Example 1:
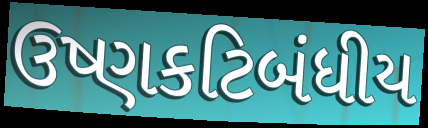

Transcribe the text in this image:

ઉષ્ણકટિબંધીય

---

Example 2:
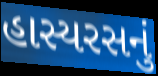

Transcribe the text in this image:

હાસ્યરસનું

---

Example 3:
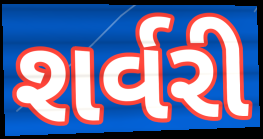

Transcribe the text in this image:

શર્વરી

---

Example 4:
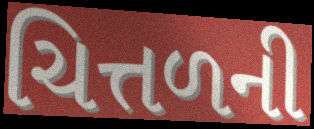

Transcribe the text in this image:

ચિત્તળની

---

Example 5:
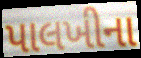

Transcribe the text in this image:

પાલખીના